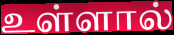
உள்ளால்